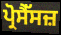
ਪ੍ਰੋਸੈੱਸਜ਼